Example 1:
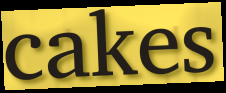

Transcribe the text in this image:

cakes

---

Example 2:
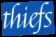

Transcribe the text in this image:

thiefs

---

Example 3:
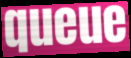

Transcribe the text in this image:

queue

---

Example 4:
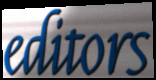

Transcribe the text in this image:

editors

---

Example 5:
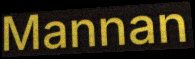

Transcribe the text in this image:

Mannan